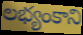
లభ్యంకాని